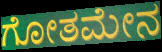
ಗೋತಮೇನ